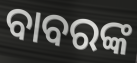
ବାବରଙ୍କ